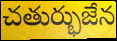
చతుర్భుజేన